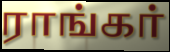
ராங்கர்